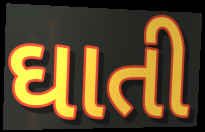
ઘાતી